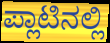
ಪ್ಲಾಟಿನಲ್ಲಿ